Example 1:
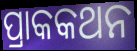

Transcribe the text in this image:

ପ୍ରାକକଥନ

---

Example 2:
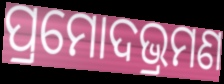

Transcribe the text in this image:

ପ୍ରମୋଦଭ୍ରମଣ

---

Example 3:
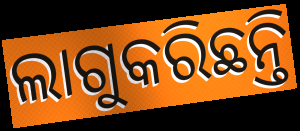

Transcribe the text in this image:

ଲାଗୁକରିଛନ୍ତି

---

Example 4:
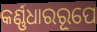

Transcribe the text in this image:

କର୍ଣ୍ଣଧାରରୂପେ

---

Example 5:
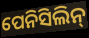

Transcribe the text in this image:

ପେନିସିଲିନ୍